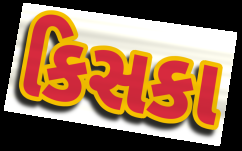
કિસકા